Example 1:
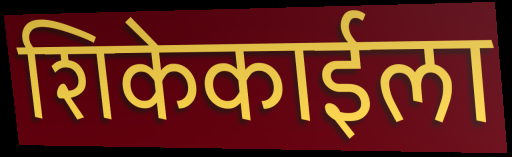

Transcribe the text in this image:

शिकेकाईला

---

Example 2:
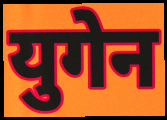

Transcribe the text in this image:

युगेन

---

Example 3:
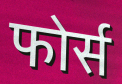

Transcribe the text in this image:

फोर्स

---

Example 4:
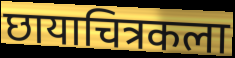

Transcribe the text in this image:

छायाचित्रकला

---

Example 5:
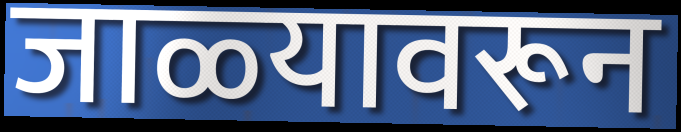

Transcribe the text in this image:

जाळ्यावरून